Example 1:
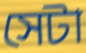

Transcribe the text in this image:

সেটা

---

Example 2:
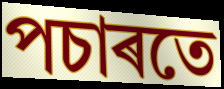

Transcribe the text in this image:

পচাৰতে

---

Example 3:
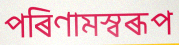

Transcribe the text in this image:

পৰিণামস্বৰূপ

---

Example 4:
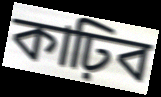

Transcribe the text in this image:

কাঢ়িব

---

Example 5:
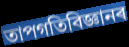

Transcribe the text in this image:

তাপগতিবিজ্ঞানৰ